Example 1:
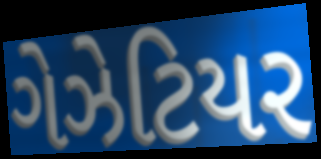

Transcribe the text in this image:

ગેઝેટિયર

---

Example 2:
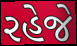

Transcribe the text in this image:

રહેજે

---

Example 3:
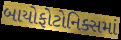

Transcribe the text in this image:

બાયોફોટોનિક્સમાં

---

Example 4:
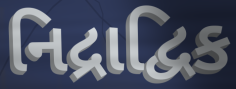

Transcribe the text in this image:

નિદ્રાદ્વિક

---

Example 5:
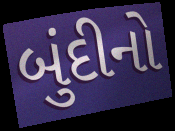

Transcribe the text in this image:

બુંદીનો